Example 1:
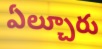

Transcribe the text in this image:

ఏల్చూరు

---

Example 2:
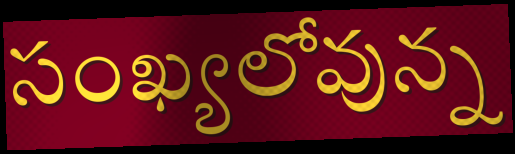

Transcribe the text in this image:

సంఖ్యలోవున్న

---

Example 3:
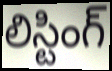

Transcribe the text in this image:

లిస్టింగ్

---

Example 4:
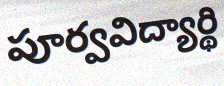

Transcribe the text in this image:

పూర్వవిద్యార్థి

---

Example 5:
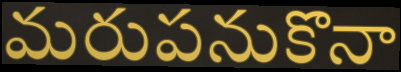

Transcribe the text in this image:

మరుపనుకొనా